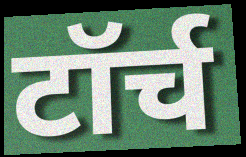
टॉर्च